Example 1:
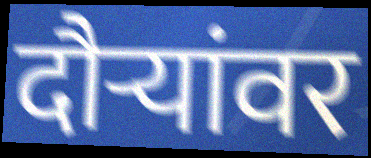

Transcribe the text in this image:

दौर्‍यांवर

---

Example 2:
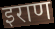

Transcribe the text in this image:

इराण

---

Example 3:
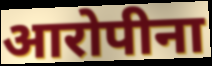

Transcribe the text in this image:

आरोपीना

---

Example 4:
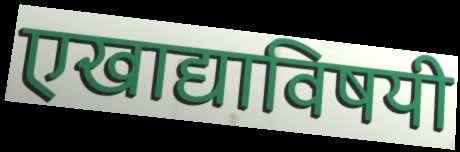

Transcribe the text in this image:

एखाद्याविषयी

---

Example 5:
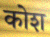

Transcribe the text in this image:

कोश